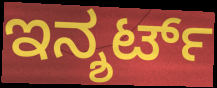
ಇನ್ಶರ್ಟ್